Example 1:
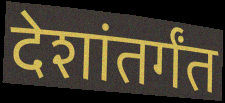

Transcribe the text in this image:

देशांतर्गंत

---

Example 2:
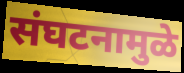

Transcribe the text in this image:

संघटनामुळे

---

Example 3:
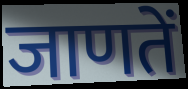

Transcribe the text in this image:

जाणतें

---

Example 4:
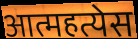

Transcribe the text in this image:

आत्महत्येस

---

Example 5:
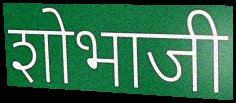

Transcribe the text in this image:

शोभाजी